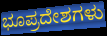
ಭೂಪ್ರದೇಶಗಳು